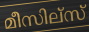
മീസില്സ്